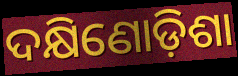
ଦକ୍ଷିଣୋଡ଼ିଶା